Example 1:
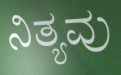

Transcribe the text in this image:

ನಿತ್ಯವು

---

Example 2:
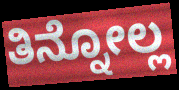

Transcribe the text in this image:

ತಿನ್ನೋಲ್ಲ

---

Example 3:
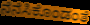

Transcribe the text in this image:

ನೆನೆಸಿಕೊಂಡಂತೆ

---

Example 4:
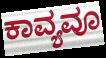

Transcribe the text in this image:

ಕಾವ್ಯವೂ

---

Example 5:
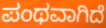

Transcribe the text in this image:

ಪಂಥವಾಗಿದೆ